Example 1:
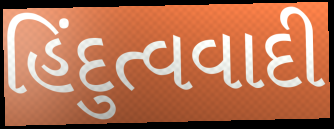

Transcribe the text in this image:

હિંદુત્વવાદી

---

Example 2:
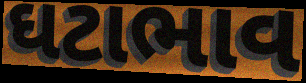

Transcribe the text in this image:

ઘટાભાવ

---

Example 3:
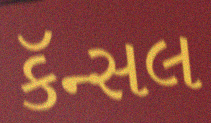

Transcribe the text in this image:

કૅન્સલ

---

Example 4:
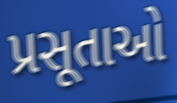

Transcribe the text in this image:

પ્રસૂતાઓ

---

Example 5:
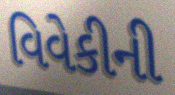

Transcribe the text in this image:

વિવેકીની